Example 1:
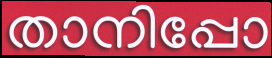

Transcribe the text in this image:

താനിപ്പോ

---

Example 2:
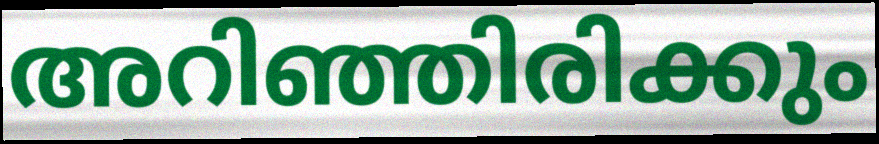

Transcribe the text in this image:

അറിഞ്ഞിരിക്കും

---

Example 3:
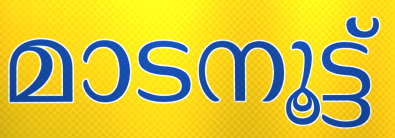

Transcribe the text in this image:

മാടനൂട്ട്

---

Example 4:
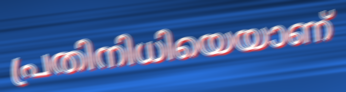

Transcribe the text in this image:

പ്രതിനിധിയെയാണ്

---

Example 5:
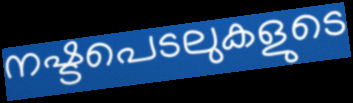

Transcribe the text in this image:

നഷ്ടപെടലുകളുടെ